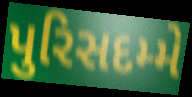
પુરિસદમ્મે